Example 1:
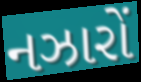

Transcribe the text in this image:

નઝારોં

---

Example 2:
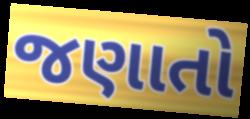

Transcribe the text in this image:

જણાતો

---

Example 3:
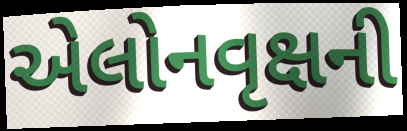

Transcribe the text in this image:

એલોનવૃક્ષની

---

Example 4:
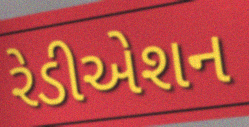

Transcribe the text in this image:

રેડીએશન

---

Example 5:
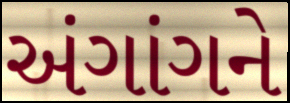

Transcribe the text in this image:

અંગાંગને